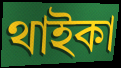
থাইকা